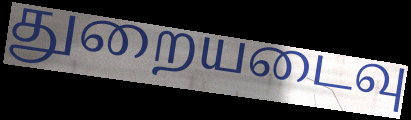
துறையடைவு